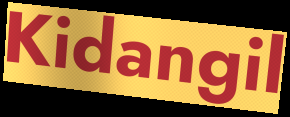
Kidangil